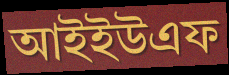
আইইউএফ